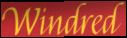
Windred